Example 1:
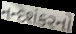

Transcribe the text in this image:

નન્દશંકરનો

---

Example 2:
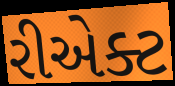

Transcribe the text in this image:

રીએક્ટ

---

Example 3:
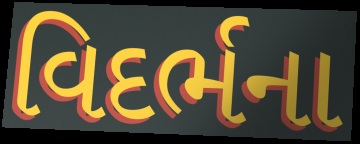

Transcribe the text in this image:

વિદર્ભના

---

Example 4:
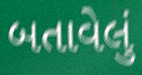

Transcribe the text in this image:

બતાવેલું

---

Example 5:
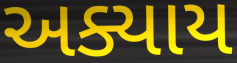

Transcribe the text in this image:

અક્યાય